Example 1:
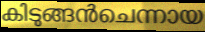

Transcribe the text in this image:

കിടുങ്ങൻചെന്നായ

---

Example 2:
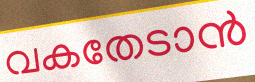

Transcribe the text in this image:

വകതേടാൻ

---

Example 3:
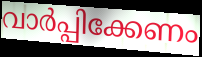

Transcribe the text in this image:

വാർപ്പിക്കേണം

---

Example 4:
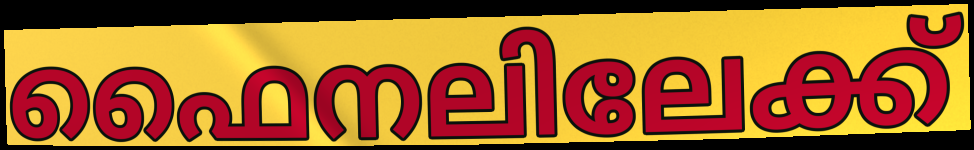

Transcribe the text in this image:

ഫൈനലിലേക്ക്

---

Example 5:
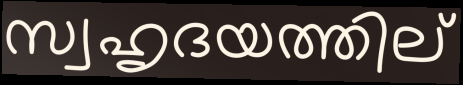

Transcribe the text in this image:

സ്വഹൃദയത്തില്